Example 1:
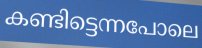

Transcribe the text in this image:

കണ്ടിട്ടെന്നപോലെ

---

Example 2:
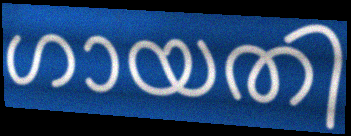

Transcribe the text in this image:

ഗായതി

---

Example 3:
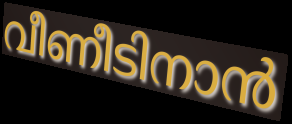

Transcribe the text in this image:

വീണീടിനാൻ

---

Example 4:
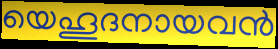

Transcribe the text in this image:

യെഹൂദനായവൻ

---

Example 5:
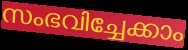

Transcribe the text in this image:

സംഭവിച്ചേക്കാം